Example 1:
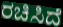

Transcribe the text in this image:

ರಚಿಸಿದೆ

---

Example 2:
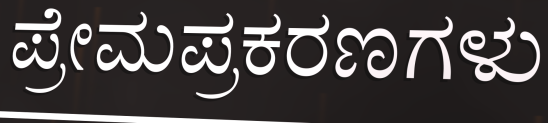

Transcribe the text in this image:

ಪ್ರೇಮಪ್ರಕರಣಗಳು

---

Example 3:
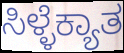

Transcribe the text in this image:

ಸಿಳ್ಳೆಕ್ಯಾತ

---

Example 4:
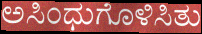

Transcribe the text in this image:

ಅಸಿಂಧುಗೊಳಿಸಿತು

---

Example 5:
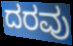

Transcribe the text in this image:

ದರವು